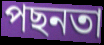
পছনতা